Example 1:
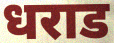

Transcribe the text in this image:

धराड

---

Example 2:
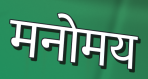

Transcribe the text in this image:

मनोमय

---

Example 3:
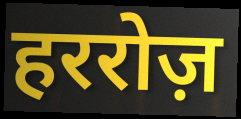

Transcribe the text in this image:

हररोज़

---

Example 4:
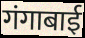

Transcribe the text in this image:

गंगाबाई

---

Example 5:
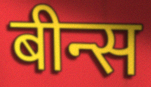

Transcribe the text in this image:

बीन्‍स